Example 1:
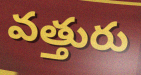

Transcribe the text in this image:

వత్తురు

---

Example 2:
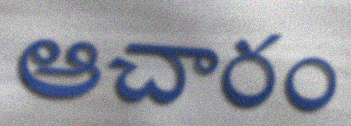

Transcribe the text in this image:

ఆచారం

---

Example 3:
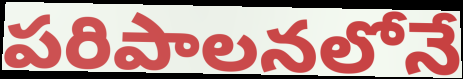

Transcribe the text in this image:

పరిపాలనలోనే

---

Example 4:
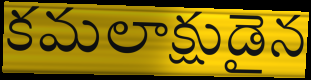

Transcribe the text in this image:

కమలాక్షుడైన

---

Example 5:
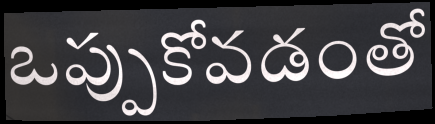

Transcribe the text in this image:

ఒప్పుకోవడంతో